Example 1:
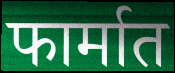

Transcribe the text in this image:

फार्मात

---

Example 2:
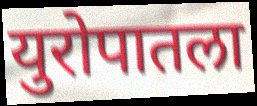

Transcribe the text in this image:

युरोपातला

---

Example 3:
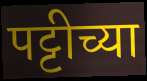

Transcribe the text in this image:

पट्टीच्या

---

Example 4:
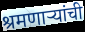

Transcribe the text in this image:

श्रमणाऱ्यांची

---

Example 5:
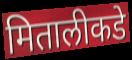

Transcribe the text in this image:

मितालीकडे